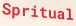
Spritual